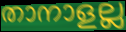
താനാളല്ല